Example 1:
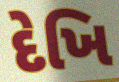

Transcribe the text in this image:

દેખિ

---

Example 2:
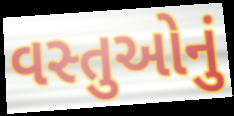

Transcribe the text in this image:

વસ્તુઓનું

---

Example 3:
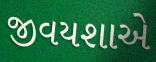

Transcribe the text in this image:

જીવયશાએ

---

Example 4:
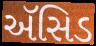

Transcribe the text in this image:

ઍસિડ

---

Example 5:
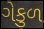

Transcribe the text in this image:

ગેકુળ